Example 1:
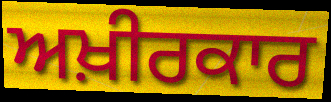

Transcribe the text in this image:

ਅਖ਼ੀਰਕਾਰ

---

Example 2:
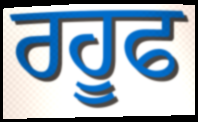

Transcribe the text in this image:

ਰਹੂਫ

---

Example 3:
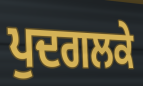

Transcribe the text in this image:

ਪੁਦਗਲਕੇ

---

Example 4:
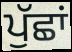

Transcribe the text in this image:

ਪੁੱਛਾਂ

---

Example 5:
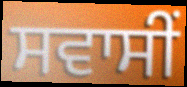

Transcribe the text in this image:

ਸਵਾਸੀਂ